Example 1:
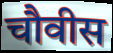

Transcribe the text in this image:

चौवीस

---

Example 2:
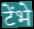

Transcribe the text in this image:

टेंभे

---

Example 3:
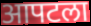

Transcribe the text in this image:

आपटला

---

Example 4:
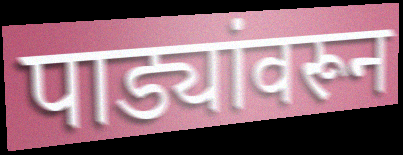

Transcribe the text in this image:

पाड्यांवरून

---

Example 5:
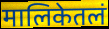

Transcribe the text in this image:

मालिकेतलं